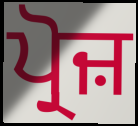
ਪ੍ਰੋਜ਼